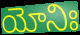
యోనిః